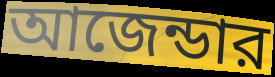
আজেন্ডার